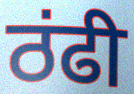
ठंढी